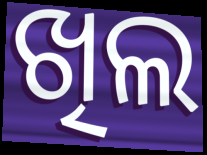
ଖିଲ